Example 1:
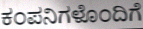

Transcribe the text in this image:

ಕಂಪನಿಗಳೊಂದಿಗೆ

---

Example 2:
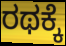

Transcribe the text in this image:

ರಥಕ್ಕೆ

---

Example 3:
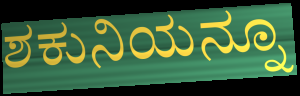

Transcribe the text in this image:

ಶಕುನಿಯನ್ನೂ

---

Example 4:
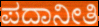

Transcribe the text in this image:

ಪದಾನೀತಿ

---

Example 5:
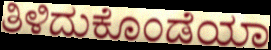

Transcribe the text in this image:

ತಿಳಿದುಕೊಂಡೆಯಾ